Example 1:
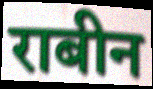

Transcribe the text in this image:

राबीन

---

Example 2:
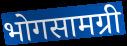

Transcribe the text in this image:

भोगसामग्री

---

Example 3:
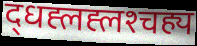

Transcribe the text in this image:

द्धह्लह्लश्चह्य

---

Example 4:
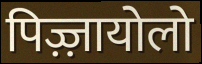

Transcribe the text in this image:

पिज़्ज़ायोलो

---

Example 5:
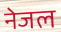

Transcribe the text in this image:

नेजल